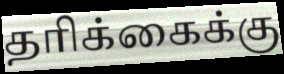
தரிக்கைக்கு